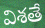
విశతే